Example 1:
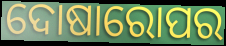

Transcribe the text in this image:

ଦୋଷାରୋପର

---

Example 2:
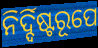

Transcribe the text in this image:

ନିର୍ଦ୍ଦିଷ୍ଟରୂପେ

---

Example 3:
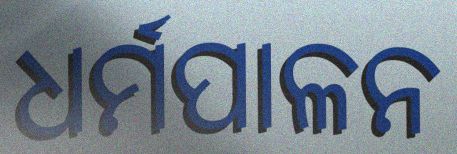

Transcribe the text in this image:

ଧର୍ମପାଳନ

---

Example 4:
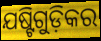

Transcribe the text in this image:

ଯଷ୍ଟିଗୁଡ଼ିକର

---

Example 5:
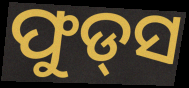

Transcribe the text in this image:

ଫୁଡ୍‌ସ